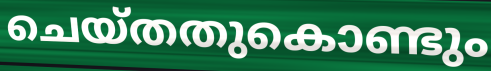
ചെയ്തതുകൊണ്ടും